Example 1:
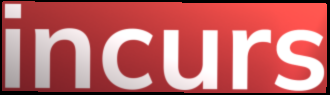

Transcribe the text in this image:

incurs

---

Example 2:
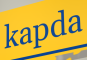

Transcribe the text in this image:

kapda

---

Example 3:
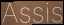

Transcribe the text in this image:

Assis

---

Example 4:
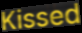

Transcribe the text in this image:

Kissed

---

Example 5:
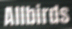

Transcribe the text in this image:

Allbirds